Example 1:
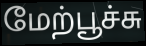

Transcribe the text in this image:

மேற்பூச்சு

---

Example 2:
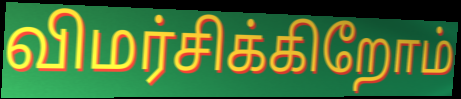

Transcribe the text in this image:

விமர்சிக்கிறோம்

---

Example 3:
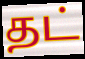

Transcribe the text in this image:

தட்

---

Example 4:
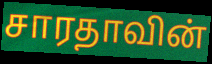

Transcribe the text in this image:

சாரதாவின்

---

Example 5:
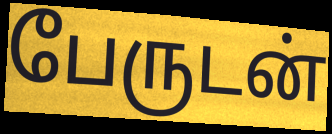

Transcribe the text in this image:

பேருடன்